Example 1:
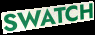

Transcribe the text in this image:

SWATCH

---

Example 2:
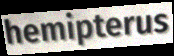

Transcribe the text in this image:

hemipterus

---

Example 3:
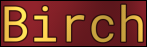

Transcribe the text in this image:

Birch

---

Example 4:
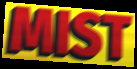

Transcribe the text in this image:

MIST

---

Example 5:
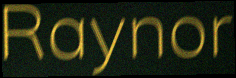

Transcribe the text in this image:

Raynor